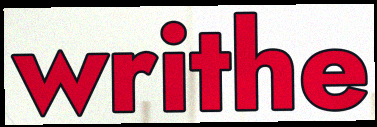
writhe